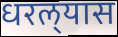
धरल्यास